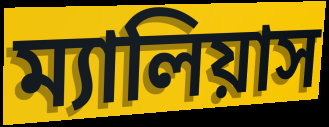
ম্যালিয়াস